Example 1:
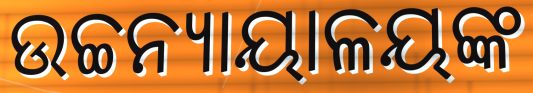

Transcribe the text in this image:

ଉଚ୍ଚନ୍ୟାୟାଳୟଙ୍କ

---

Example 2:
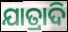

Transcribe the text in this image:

ଯାତ୍ରାଦି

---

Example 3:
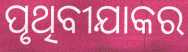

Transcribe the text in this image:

ପୃଥିବୀଯାକର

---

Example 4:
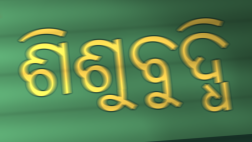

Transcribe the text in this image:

ଶିଶୁବୁଦ୍ଧି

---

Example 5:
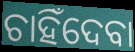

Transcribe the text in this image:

ଚାହିଁଦେବା